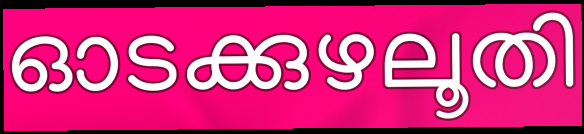
ഓടക്കുഴലൂതി